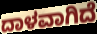
ದಾಳವಾಗಿದೆ